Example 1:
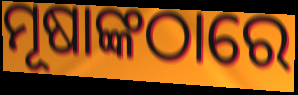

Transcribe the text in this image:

ମୂଷାଙ୍କଠାରେ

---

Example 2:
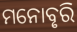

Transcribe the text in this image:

ମନୋବୃରି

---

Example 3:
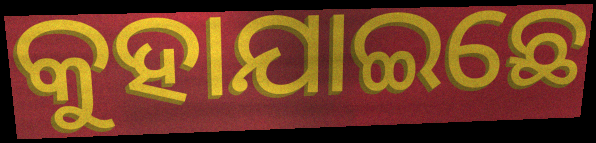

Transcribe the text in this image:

କୁହାଯାଇଛେ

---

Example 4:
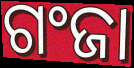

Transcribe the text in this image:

ଗଂଜା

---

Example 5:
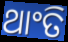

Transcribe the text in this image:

ଥାଂତି